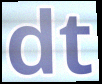
dt